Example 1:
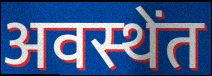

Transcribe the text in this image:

अवस्थेंत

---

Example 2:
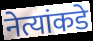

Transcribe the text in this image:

नेत्यांकडे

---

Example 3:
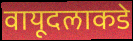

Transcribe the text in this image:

वायूदलाकडे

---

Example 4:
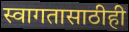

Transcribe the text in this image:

स्वागतासाठीही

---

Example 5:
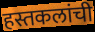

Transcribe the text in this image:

हस्तकलांची